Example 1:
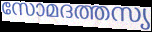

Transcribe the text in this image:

സോമദത്തസ്യ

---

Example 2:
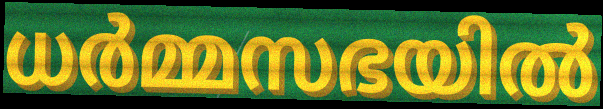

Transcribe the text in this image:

ധർമ്മസഭയിൽ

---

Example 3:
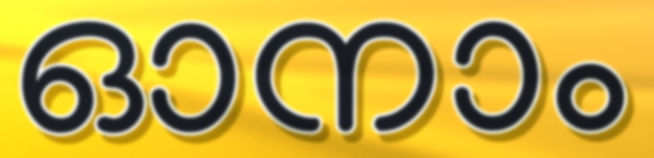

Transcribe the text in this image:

ഓനാം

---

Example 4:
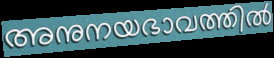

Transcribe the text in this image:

അനുനയഭാവത്തിൽ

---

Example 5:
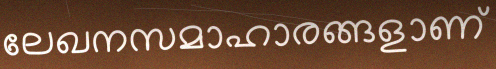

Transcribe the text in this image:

ലേഖനസമാഹാരങ്ങളാണ്